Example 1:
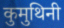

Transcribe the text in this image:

कुमुथिनी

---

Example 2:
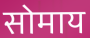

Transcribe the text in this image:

सोमाय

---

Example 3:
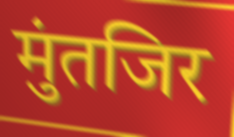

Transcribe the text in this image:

मुंतजिर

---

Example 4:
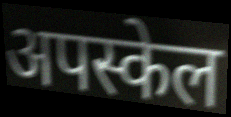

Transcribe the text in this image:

अपस्केल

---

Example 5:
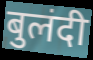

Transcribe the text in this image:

बुलंदी